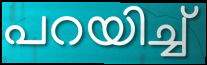
പറയിച്ച്